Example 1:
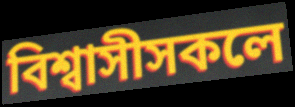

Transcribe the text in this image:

বিশ্বাসীসকলে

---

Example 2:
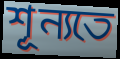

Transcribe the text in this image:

শূন্যতে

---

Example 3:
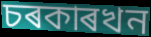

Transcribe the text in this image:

চৰকাৰখন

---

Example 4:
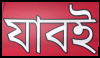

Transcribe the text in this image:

যাবই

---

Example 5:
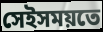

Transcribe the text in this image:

সেইসময়তে